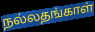
நல்லதங்காள்